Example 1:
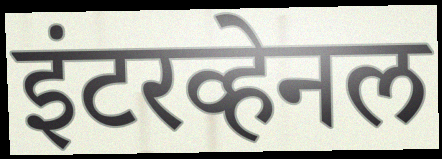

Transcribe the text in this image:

इंटरव्हेनल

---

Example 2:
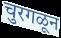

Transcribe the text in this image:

चुरगळून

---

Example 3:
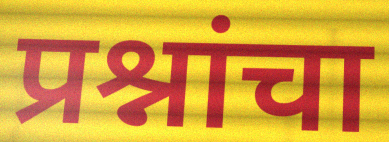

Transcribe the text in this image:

प्रश्नांचा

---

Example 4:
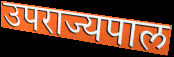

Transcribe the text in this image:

उपराज्यपाल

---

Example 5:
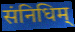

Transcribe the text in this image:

संनिधिम्